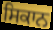
ਸਿਕਾਨ